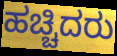
ಹಚ್ಚಿದರು